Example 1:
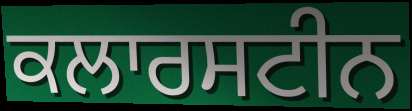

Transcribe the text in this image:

ਕਲਾਰਸਟੀਨ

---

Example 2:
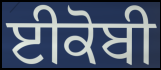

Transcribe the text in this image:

ਈਕੋਬੀ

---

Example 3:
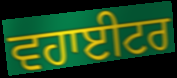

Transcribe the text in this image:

ਵਹਾਈਟਰ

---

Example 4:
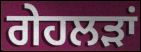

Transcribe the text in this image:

ਗੇਹਲੜਾਂ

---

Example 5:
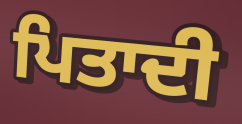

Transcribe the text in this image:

ਪਿਤਾਦੀ